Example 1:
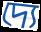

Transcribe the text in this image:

দ্যে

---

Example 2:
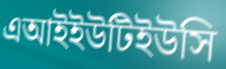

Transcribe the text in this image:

এআইইউটিইউসি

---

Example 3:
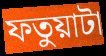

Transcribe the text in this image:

ফতুয়াটা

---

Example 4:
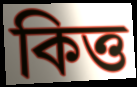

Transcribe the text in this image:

কিত্ত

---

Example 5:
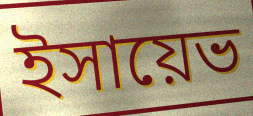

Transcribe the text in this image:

ইসায়েভ